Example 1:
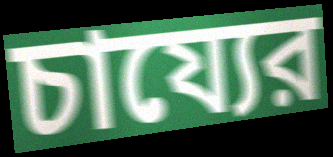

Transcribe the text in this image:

চায্যের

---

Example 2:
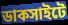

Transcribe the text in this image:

ডাকসাইটে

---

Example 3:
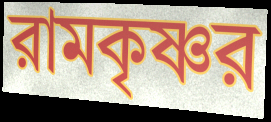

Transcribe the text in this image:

রামকৃষ্ণর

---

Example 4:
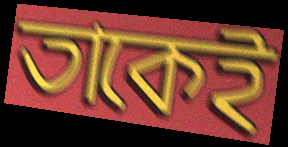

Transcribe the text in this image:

তাকেই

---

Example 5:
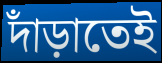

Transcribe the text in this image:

দাঁড়াতেই